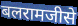
बलरामजीसे